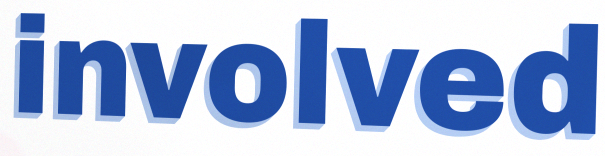
involved